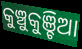
କୁଞ୍ଚୁକୁଞ୍ଚିଆ